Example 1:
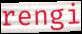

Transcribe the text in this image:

rengi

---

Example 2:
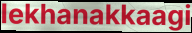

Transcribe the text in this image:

lekhanakkaagi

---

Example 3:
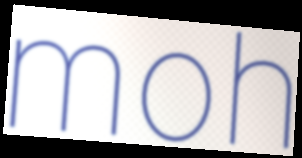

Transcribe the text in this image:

moh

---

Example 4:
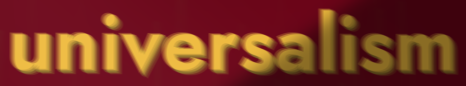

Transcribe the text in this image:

universalism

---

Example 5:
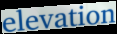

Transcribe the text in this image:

elevation